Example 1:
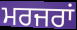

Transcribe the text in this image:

ਮਰਜਰਾਂ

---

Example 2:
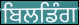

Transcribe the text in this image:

ਬਿਲਡਿੰਗ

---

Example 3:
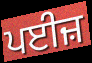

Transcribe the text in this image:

ਪਈਜ਼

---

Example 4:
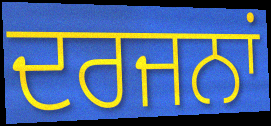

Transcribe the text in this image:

ਦਰਜਨਾਂ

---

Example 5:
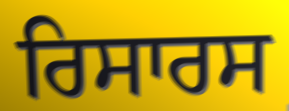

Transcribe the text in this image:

ਰਿਸਾਰਸ